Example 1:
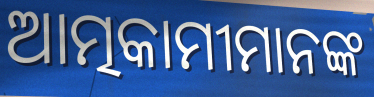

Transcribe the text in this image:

ଆତ୍ମକାମୀମାନଙ୍କ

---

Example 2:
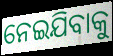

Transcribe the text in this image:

ନେଇଯିବାକୁ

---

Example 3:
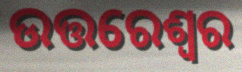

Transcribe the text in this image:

ଉତ୍ତରେଶ୍ୱର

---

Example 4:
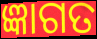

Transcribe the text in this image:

ଜ୍ଞାଗତ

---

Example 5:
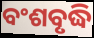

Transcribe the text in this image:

ବଂଶବୃଦ୍ଧି